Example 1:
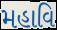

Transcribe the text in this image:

મહાવિ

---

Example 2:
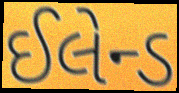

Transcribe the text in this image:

ઈલેન્ડ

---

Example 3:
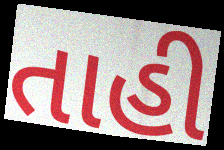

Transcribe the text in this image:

તાહી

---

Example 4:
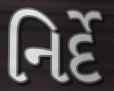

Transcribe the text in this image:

નિર્દે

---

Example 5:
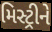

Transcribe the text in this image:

મિસ્ટ્રીને